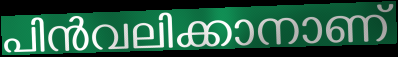
പിൻവലിക്കാനാണ്